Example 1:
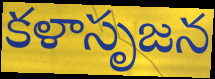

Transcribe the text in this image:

కళాసృజన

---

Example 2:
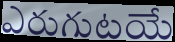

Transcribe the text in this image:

ఎరుగుటయే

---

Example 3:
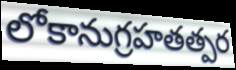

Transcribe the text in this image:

లోకానుగ్రహతత్పర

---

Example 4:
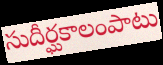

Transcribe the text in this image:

సుదీర్ఘకాలంపాటు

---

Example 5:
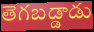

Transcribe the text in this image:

తెగబడ్డాడు